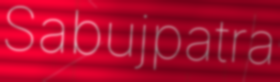
Sabujpatra